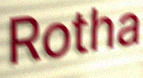
Rotha